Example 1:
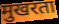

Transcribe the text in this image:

मुखरता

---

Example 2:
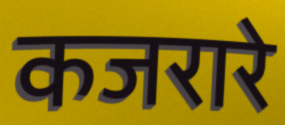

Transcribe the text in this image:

कजरारे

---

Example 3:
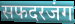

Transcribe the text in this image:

सफदरजंग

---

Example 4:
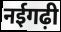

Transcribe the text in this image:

नईगढ़ी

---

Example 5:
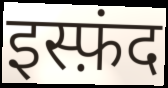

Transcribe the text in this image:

इस्फ़ंद